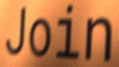
Join